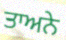
ਤਾਅਨੇ